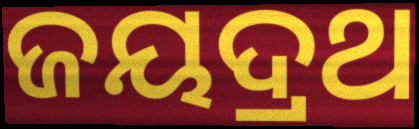
ଜୟଦ୍ରଥ